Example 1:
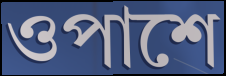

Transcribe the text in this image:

ওপাশে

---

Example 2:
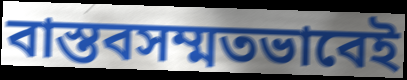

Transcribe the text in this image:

বাস্তবসম্মতভাবেই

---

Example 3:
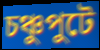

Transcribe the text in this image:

চঞ্চুপুটে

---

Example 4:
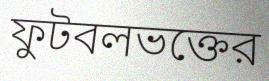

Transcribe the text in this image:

ফুটবলভক্তের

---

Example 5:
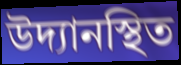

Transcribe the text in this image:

উদ্যানস্থিত